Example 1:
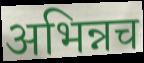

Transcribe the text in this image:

अभिन्नच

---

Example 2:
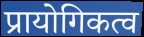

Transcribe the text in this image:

प्रायोगिकत्व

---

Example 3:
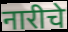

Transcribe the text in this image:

नारीचे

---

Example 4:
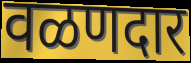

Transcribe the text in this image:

वळणदार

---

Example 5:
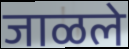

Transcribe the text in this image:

जाळले